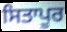
ਸਿਤਾਪੂਰ